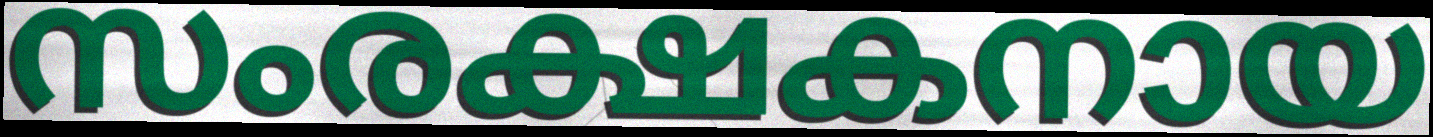
സംരക്ഷകനായ